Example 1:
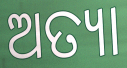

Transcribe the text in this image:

ଅତ୍ୟା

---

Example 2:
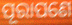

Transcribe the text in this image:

ପୂରାପଣେ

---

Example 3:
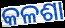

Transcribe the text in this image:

କଳଶା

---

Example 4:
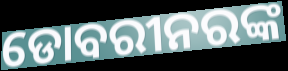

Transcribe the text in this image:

ଡୋବରୀନରଙ୍କ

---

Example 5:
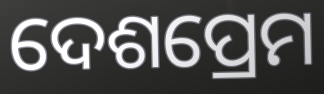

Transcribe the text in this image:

ଦେଶପ୍ରେମ